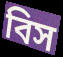
বিস